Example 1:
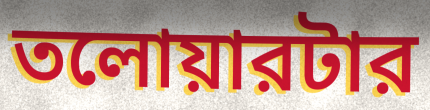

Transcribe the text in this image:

তলোয়ারটার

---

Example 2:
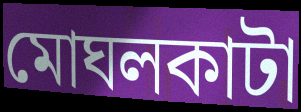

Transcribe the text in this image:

মোঘলকাটা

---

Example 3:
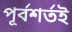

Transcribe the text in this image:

পূর্বশর্তই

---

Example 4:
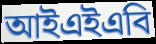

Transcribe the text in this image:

আইএইএবি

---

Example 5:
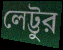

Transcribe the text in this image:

লেট্টুর